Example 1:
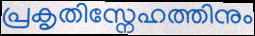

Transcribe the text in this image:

പ്രകൃതിസ്നേഹത്തിനും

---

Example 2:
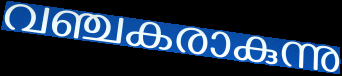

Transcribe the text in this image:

വഞ്ചകരാകുന്നു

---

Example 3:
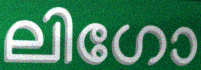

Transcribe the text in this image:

ലിഗോ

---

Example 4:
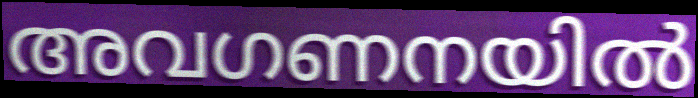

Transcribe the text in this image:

അവഗണനയിൽ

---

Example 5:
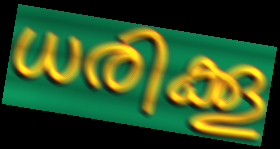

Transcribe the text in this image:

ധരിക്കൂ